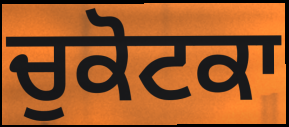
ਚੁਕੋਟਕਾ